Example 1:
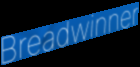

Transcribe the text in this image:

Breadwinner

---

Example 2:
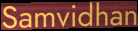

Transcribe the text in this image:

Samvidhan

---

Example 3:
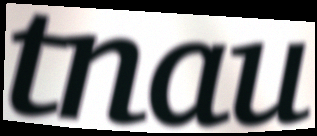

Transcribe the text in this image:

tnau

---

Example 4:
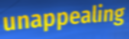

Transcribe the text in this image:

unappealing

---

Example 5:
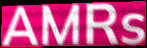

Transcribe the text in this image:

AMRs